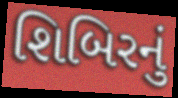
શિબિરનું